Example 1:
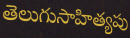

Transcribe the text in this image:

తెలుగుసాహిత్యపు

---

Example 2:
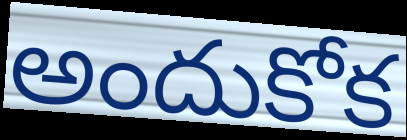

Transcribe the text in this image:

అందుకోక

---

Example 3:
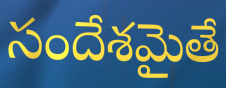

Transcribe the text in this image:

సందేశమైతే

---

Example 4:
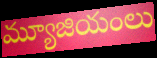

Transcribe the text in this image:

మ్యూజియంలు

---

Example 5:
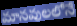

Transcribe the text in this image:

మానవులలోనే